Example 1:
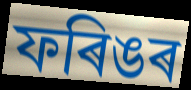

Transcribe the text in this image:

ফৰিঙৰ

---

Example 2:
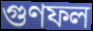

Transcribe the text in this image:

গুণফল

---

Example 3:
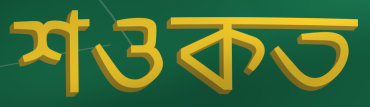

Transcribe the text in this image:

শওকত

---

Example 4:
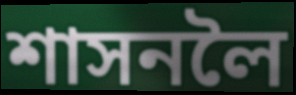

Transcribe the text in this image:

শাসনলৈ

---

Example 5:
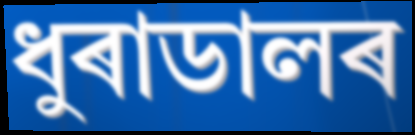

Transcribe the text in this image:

ধুৰাডালৰ